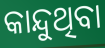
କାନ୍ଦୁଥିବା